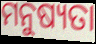
ମନୁଷ୍ୟତା